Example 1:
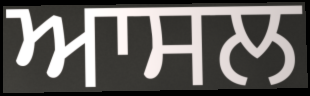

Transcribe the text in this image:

ਆਸਲ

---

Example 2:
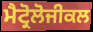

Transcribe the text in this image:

ਮੈਟ੍ਰੋਲੋਜੀਕਲ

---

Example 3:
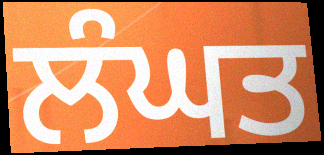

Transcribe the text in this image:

ਲੰਘਤ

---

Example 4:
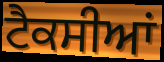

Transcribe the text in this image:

ਟੈਕਸੀਆਂ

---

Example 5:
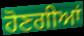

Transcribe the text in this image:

ਹੋਣਗੀਆਂ